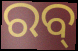
ରବ୍